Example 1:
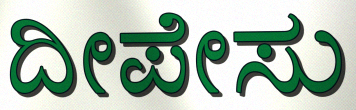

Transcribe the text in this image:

ದೀಪೇಸು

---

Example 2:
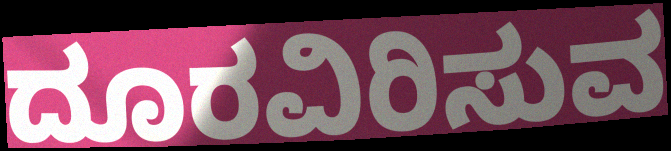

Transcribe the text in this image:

ದೂರವಿರಿಸುವ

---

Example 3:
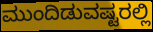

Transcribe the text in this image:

ಮುಂದಿಡುವಷ್ಟರಲ್ಲಿ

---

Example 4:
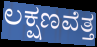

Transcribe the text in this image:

ಲಕ್ಷಣವೆತ್ತ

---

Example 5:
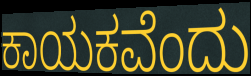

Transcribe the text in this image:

ಕಾಯಕವೆಂದು